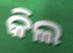
କିଲ